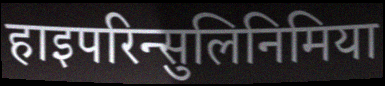
हाइपरिन्सुलिनिमिया